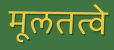
मूलतत्वे